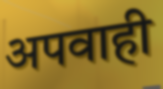
अपवाही